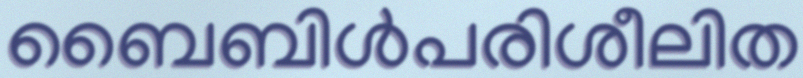
ബൈബിൾപരിശീലിത